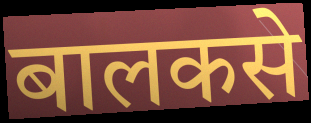
बालकसे